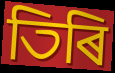
তিৰি